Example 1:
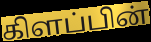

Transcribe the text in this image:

கிளப்பின்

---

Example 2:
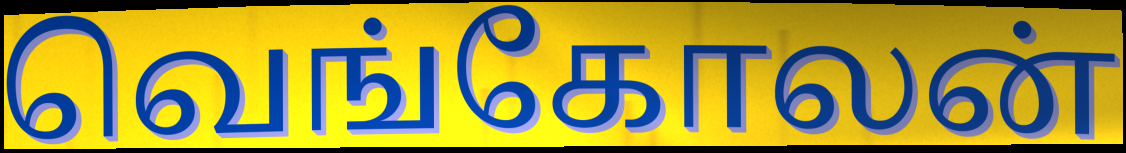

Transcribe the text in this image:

வெங்கோலன்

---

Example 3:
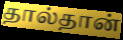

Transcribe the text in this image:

தால்தான்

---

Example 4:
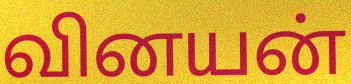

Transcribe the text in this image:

வினயன்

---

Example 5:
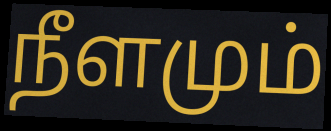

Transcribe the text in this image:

நீளமும்